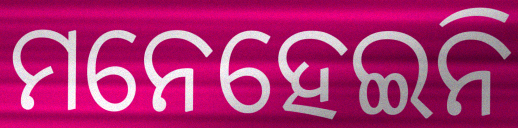
ମନେହେଇନି